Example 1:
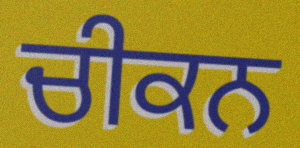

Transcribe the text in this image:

ਚੀਕਨ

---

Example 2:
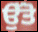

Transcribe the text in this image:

ਉੱਤੋ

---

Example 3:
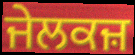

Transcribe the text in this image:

ਜੇਲਕਜ਼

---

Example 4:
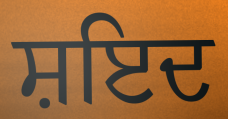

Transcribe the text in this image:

ਸ਼ਇਦ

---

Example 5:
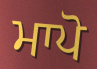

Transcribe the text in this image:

ਮਾਪੋ